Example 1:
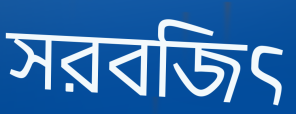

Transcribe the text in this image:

সরবজিৎ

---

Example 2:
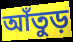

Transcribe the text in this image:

আঁতুড়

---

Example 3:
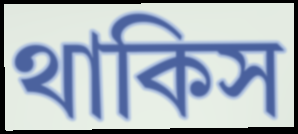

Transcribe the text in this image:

থাকিস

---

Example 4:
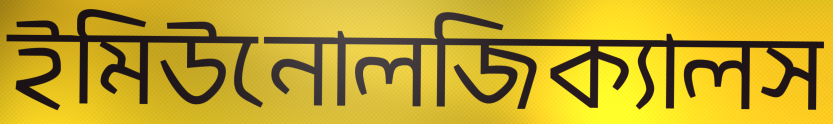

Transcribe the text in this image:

ইমিউনোলজিক্যালস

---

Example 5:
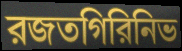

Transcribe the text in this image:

রজতগিরিনিভ